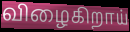
விழைகிறாய்